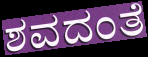
ಶವದಂತೆ